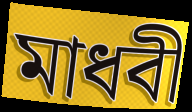
মাধবী